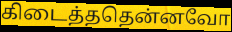
கிடைத்ததென்னவோ